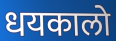
धयकालो